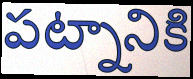
పట్నానికి